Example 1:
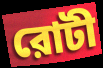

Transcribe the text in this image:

রোটী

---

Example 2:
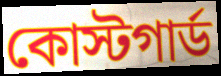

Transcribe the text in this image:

কোস্টগার্ড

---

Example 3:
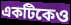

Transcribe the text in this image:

একটিকেও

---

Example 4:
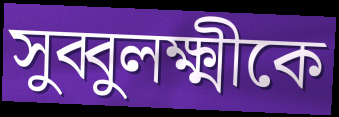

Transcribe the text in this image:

সুব্বুলক্ষ্মীকে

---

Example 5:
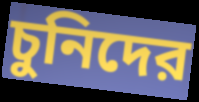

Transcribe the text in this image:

চুনিদের